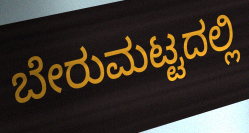
ಬೇರುಮಟ್ಟದಲ್ಲಿ